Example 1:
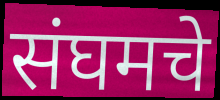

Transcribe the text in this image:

संघमचे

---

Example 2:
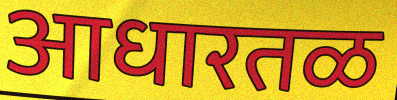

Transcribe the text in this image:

आधारतळ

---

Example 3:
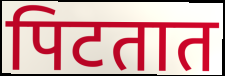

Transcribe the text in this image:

पिटतात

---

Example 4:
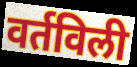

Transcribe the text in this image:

वर्तविली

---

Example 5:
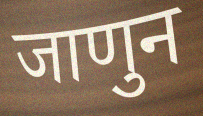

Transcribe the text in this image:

जाणुन